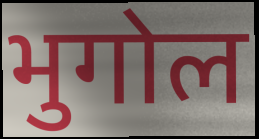
भुगोल